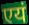
एयं